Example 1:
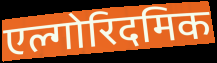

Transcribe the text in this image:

एल्गोरिदमिक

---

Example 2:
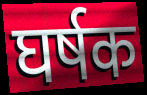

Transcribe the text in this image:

घर्षक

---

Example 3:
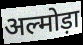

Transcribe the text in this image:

अल्मोड़ा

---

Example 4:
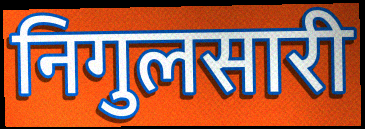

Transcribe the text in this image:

निगुलसारी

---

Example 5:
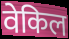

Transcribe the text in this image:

वेकिल